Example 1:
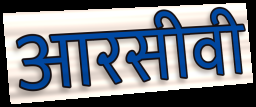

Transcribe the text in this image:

आरसीवी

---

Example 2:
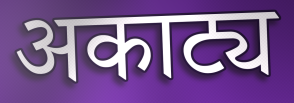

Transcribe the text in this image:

अकाट्य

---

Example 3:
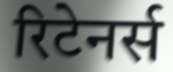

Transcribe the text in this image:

रिटेनर्स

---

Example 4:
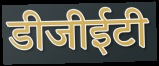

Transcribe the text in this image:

डीजीईटी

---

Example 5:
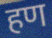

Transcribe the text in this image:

हण